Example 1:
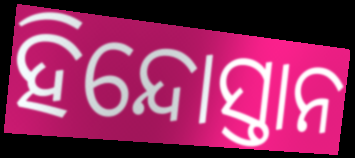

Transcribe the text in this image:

ହିନ୍ଦୋସ୍ତାନ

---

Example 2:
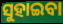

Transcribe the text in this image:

ସୁହାଇବା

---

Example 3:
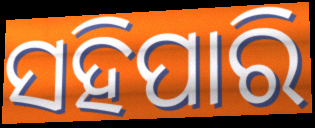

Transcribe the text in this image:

ସହିପାରି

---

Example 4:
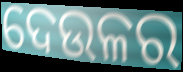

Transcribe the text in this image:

ଦେଉଳର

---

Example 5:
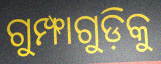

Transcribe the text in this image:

ଗୁମ୍ଫାଗୁଡ଼ିକୁ